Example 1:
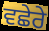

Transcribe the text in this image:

ਵਛੇਰੇ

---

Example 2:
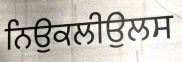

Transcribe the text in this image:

ਨਿਉਕਲੀਉਲਸ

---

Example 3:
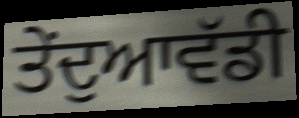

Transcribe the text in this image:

ਤੇਂਦੁਆਵੱਡੀ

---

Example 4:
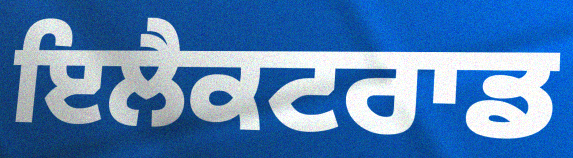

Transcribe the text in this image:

ਇਲੈਕਟਰਾਡ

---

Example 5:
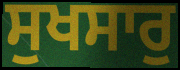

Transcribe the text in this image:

ਸੁਖਸਾਰੁ